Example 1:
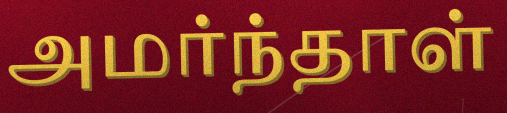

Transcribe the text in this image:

அமர்ந்தாள்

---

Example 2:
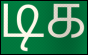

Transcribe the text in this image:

டிக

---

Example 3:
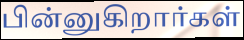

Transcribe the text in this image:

பின்னுகிறார்கள்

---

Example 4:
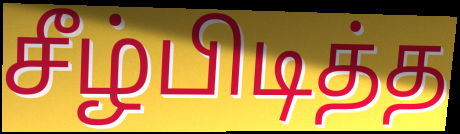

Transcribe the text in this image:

சீழ்பிடித்த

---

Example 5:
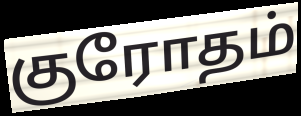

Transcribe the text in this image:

குரோதம்